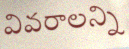
వివరాలన్ని